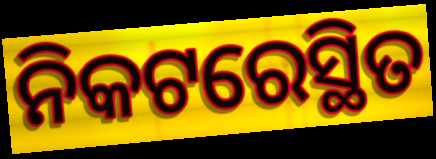
ନିକଟରେସ୍ଥିତ